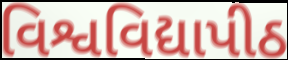
વિશ્વવિદ્યાપીઠ